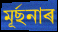
মূৰ্ছনাৰ